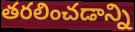
తరలించడాన్ని